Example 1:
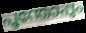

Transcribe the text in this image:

പൂന്തോപ്പും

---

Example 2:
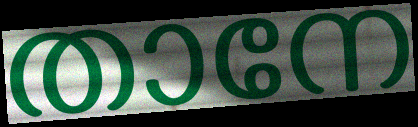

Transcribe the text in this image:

താനേ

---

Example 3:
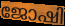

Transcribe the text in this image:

ജോഷി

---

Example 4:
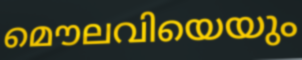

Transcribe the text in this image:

മൌലവിയെയും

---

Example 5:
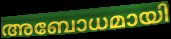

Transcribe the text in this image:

അബോധമായി